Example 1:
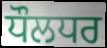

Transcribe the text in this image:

ਧੌਲਧਰ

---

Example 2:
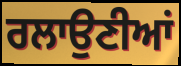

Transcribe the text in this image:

ਰਲਾਉਣੀਆਂ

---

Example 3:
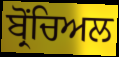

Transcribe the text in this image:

ਬ੍ਰੋਂਚਿਅਲ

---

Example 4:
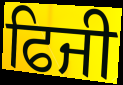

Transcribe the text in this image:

ਫਿਜੀ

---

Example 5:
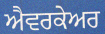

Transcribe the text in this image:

ਐਵਰਕੇਅਰ